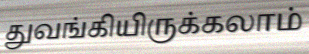
துவங்கியிருக்கலாம்